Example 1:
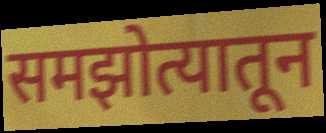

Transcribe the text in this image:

समझोत्यातून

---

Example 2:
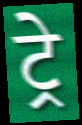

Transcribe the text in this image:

ट्रे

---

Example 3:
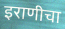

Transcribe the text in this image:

इराणीचा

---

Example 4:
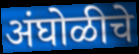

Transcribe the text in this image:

अंघोळीचे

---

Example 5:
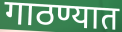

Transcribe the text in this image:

गाठण्यात